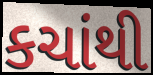
કચાંથી